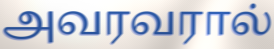
அவரவரால்